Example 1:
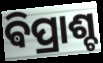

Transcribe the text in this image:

ଵିପ୍ରାଶ୍ଚ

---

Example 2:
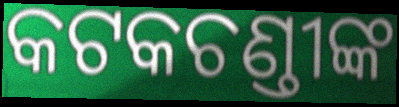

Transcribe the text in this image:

କଟକଚଣ୍ଡୀଙ୍କ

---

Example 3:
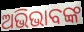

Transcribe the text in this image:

ଅଭିଭାବଙ୍କ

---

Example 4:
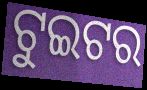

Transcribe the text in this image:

ଟୁଇଟର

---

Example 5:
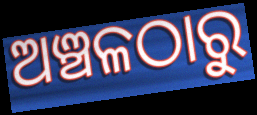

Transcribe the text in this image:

ଅଞ୍ଚଳଠାରୁ